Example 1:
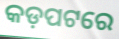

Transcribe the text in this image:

କଡ଼ପଟରେ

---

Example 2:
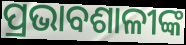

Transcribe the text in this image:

ପ୍ରଭାବଶାଳୀଙ୍କ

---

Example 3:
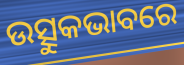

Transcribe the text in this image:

ଉତ୍ସୁକଭାବରେ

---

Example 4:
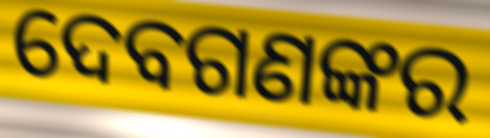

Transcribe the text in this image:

ଦେବଗଣଙ୍କର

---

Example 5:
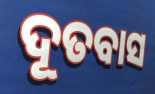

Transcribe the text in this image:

ଦୂତବାସ